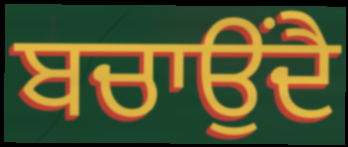
ਬਚਾਉਂਦੈ